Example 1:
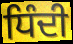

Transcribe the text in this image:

ਧਿੰਦੀ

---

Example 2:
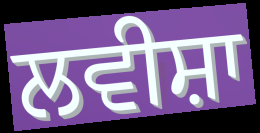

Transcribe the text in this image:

ਲਵੀਸ਼ਾ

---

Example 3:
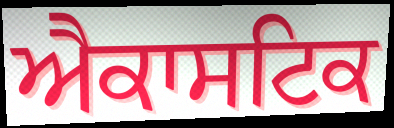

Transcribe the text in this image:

ਐਕਾਸਟਿਕ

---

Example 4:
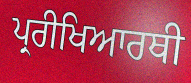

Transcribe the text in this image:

ਪ੍ਰਰੀਖਿਆਰਥੀ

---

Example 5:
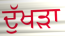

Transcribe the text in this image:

ਦੁੱਖਡ਼ਾ